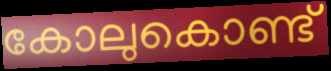
കോലുകൊണ്ട്